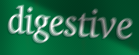
digestive